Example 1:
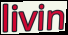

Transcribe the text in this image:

livin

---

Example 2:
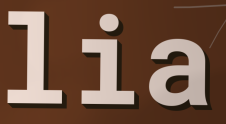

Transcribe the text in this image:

lia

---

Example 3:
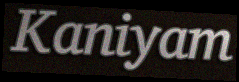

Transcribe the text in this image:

Kaniyam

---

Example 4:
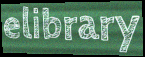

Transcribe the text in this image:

elibrary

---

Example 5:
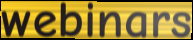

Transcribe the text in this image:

webinars